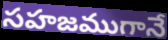
సహజముగానే